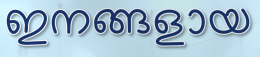
ഇനങ്ങളായ